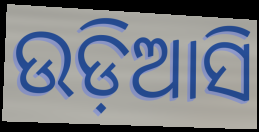
ଉଡ଼ିଆସି